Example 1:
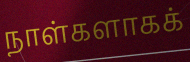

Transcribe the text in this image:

நாள்களாகக்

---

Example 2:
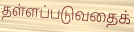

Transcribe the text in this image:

தள்ளப்படுவதைக்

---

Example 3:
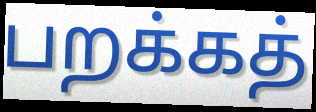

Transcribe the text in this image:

பறக்கத்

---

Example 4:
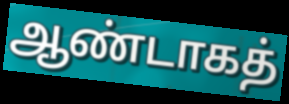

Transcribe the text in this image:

ஆண்டாகத்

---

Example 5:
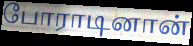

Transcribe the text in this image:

போராடினான்